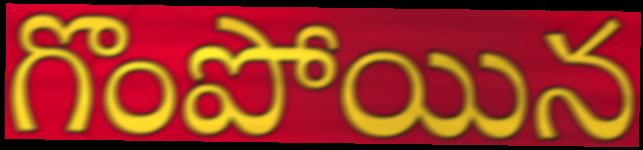
గొంపోయిన